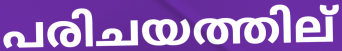
പരിചയത്തില്